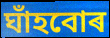
ঘাঁহবোৰ